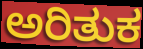
ಅರಿತುಕ